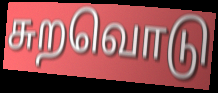
சுறவொடு